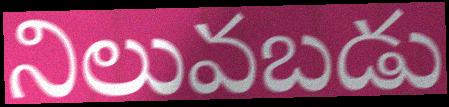
నిలువబడు